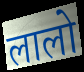
लालो